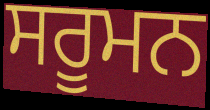
ਸਰੂਮਨ